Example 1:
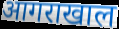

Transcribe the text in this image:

आगराखाल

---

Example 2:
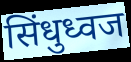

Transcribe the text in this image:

सिंधुध्वज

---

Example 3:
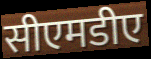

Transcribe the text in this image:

सीएमडीए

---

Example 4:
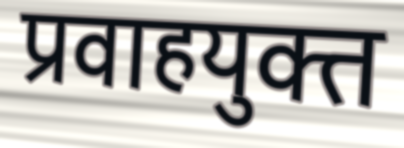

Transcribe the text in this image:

प्रवाहयुक्त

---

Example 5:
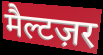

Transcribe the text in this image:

मैल्टज़र